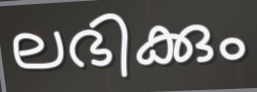
ലഭിക്കും